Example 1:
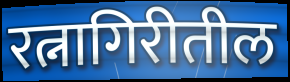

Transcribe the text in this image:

रत्नागिरीतील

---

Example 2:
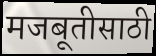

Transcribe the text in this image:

मजबूतीसाठी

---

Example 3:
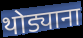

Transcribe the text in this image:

थोड्याना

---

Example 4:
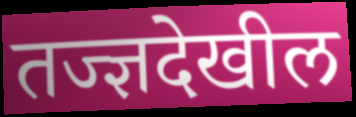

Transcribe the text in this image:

तज्ज्ञदेखील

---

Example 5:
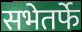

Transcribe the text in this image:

सभेतर्फे